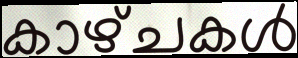
കാഴ്‌ചകൾ